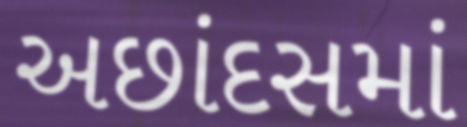
અછાંદસમાં